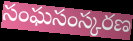
సంఘసంస్కరణ